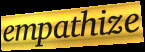
empathize